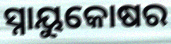
ସ୍ନାୟୁକୋଷର